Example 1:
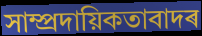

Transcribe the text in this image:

সাম্প্ৰদায়িকতাবাদৰ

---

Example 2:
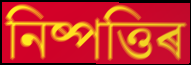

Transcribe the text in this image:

নিষ্পত্তিৰ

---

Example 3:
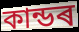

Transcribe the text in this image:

কান্ডৰ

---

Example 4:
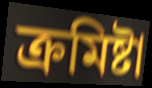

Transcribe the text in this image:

ক্ৰমিষ্টা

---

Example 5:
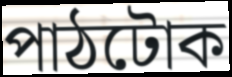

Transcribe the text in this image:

পাঠটোক